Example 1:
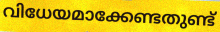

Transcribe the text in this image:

വിധേയമാക്കേണ്ടതുണ്ട്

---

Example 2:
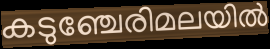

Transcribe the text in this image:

കടുഞ്ചേരിമലയിൽ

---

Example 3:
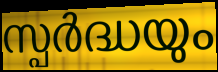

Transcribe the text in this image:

സ്പർദ്ധയും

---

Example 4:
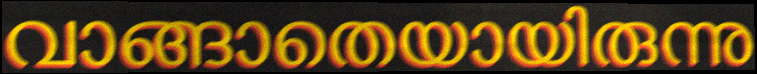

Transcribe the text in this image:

വാങ്ങാതെയായിരുന്നു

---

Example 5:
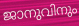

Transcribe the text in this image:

ജാനുവിനും